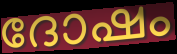
ദോഷം